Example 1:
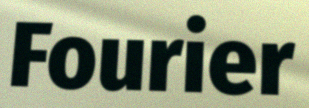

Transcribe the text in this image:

Fourier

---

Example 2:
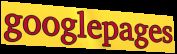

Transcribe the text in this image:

googlepages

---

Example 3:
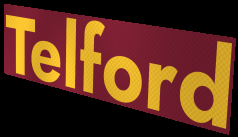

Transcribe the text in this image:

Telford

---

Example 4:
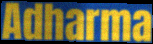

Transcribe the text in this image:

Adharma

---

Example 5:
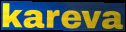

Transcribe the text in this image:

kareva